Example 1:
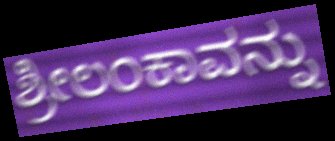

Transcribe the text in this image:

ಶ್ರೀಲಂಕಾವನ್ನು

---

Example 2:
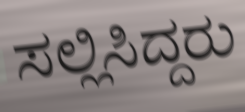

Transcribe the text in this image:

ಸಲ್ಲಿಸಿದ್ದರು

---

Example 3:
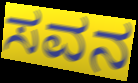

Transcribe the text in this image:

ಸವನ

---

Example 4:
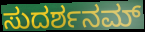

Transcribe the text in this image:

ಸುದರ್ಶನಮ್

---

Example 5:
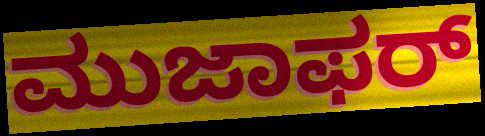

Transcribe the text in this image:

ಮುಜಾಫರ್